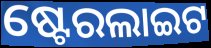
ଷ୍ଟେରଲାଇଟ